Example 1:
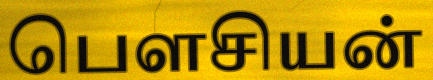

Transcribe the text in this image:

பௌசியன்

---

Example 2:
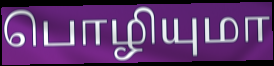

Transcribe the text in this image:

பொழியுமா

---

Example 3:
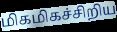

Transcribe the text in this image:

மிகமிகச்சிறிய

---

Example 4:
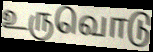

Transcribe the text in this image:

உருவொடு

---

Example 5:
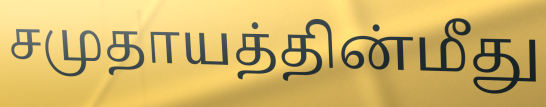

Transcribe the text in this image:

சமுதாயத்தின்மீது